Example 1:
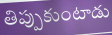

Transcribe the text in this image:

తిప్పుకుంటాడు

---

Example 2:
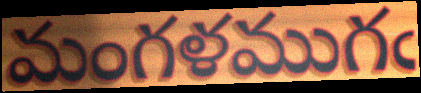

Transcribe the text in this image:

మంగళముగఁ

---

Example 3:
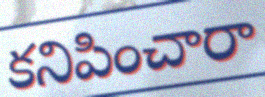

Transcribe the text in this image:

కనిపించారా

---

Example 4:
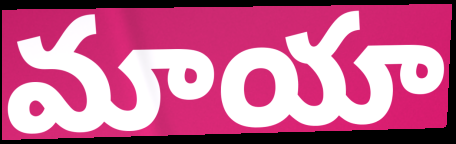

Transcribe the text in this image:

మాయా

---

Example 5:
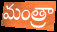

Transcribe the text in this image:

మంత్రా